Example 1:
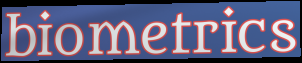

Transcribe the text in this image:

biometrics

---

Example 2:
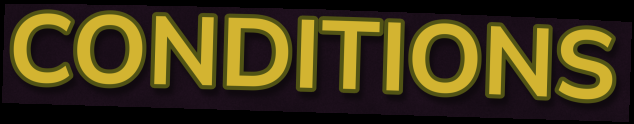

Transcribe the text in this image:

CONDITIONS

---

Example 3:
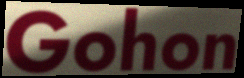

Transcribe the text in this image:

Gohon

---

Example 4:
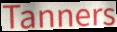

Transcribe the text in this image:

Tanners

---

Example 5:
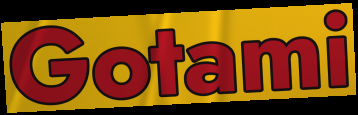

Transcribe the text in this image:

Gotami